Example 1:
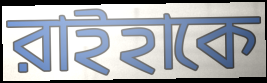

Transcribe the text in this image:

রাইহাকে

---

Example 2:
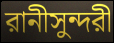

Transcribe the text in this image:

রানীসুন্দরী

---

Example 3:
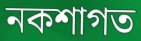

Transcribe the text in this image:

নকশাগত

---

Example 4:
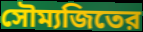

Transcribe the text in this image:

সৌম্যজিতের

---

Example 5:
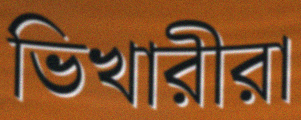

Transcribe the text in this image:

ভিখারীরা